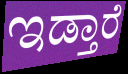
ಇಡ್ತಾರೆ